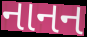
નાનન